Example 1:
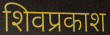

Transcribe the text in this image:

शिवप्रकाश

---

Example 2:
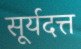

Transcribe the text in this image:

सूर्यदत्त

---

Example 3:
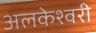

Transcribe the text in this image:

अलकेश्वरी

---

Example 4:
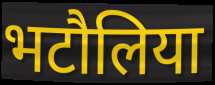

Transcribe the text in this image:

भटौलिया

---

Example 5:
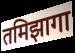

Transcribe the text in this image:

तमिझागा